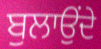
ਬੁਲਾਉਂਦੇ